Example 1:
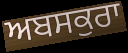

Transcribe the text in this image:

ਅਬਸਕੁਰਾ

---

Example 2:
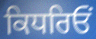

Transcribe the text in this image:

ਕਿਧਰਿਓਂ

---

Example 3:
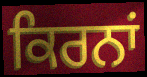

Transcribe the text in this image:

ਕਿਰਨਾਂ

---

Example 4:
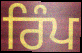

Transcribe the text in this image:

ਰਿੰਪ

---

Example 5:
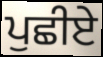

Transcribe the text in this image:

ਪੁਛੀਏ